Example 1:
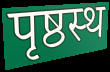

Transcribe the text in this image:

पृष्ठस्थ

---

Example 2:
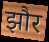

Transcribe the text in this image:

झौर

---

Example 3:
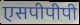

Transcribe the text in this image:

एसपीपीपी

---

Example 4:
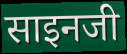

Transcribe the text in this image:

साइनजी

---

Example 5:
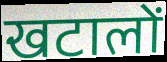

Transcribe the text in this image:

खटालों